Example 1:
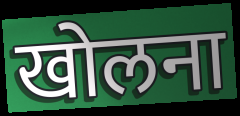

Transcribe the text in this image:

खोलना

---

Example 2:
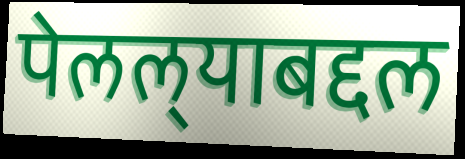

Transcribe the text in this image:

पेलल्याबद्दल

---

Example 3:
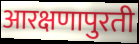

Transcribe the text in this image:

आरक्षणापुरती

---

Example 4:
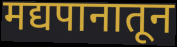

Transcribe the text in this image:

मद्यपानातून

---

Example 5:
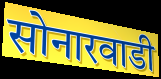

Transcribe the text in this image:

सोनारवाडी